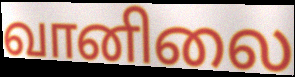
வானிலை